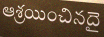
ఆశ్రయించినదై